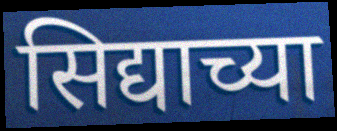
सिद्याच्या